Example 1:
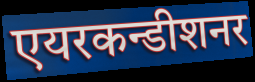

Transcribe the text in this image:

एयरकन्डीशनर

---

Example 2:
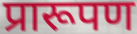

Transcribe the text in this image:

प्रारूपण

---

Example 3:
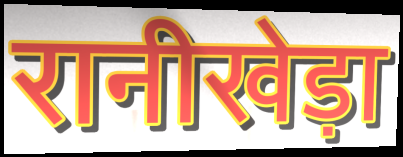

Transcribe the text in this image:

रानीखेड़ा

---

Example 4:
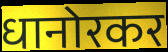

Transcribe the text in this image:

धानोरकर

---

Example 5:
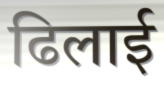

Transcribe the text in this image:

ढिलाई